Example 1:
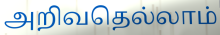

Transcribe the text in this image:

அறிவதெல்லாம்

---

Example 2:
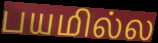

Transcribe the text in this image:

பயமில்ல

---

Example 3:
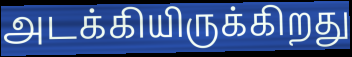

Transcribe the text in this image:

அடக்கியிருக்கிறது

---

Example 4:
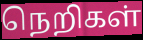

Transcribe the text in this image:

நெறிகள்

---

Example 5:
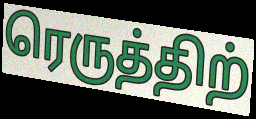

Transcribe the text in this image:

ரெருத்திற்